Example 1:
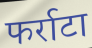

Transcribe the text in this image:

फर्राटा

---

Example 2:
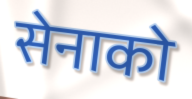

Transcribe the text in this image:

सेनाको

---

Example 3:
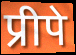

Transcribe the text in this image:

प्रीपे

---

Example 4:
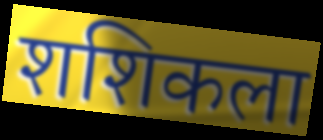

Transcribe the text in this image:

शशिकला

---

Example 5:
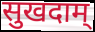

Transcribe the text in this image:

सुखदाम्